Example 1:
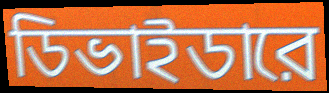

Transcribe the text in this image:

ডিভাইডারে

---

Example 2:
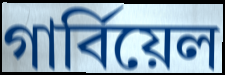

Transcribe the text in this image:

গার্বিয়েল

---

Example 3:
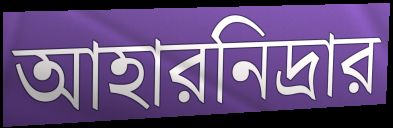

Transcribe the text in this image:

আহারনিদ্রার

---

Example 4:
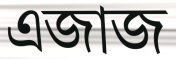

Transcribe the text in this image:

এজাজ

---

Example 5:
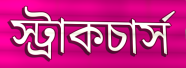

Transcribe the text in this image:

স্ট্রাকচার্স